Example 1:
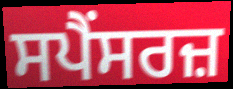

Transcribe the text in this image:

ਸਪੈਂਸਰਜ਼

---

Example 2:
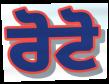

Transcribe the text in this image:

ਰੋਟੋ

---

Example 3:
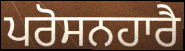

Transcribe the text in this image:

ਪਰੋਸਨਹਾਰੈ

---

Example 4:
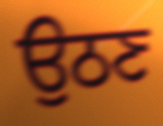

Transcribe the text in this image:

ਉਠਣ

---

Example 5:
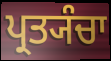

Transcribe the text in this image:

ਪ੍ਰਤ੍ਯੰਚਾ